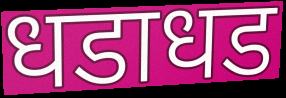
धडाधड